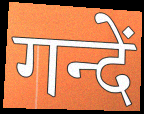
गन्दें